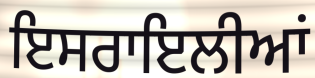
ਇਸਰਾਇਲੀਆਂ